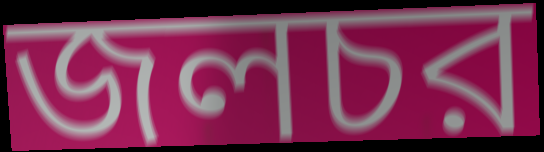
জলচর